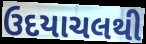
ઉદયાચલથી